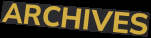
ARCHIVES